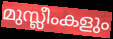
മുസ്ലീംകളും